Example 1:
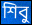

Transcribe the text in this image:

শিবু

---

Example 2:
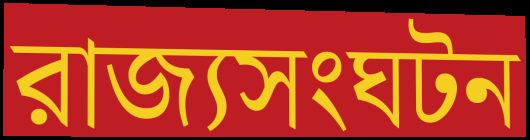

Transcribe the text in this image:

রাজ্যসংঘটন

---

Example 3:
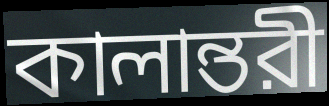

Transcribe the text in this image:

কালান্তরী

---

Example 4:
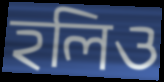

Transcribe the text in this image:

হলিও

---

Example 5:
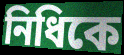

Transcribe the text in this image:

নিধিকে